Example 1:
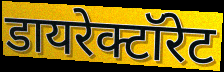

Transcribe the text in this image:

डायरेक्टॉरेट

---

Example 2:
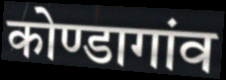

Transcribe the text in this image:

कोण्डागांव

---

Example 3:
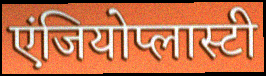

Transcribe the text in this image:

एंजियोप्लास्टी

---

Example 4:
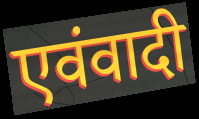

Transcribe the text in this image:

एवंवादी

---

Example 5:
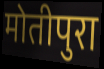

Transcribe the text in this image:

मोतीपुरा